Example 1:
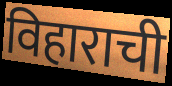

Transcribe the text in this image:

विहाराची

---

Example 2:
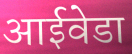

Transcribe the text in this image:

आईवेडा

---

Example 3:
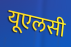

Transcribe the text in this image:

यूएलसी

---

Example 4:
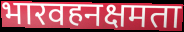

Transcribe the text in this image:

भारवहनक्षमता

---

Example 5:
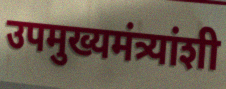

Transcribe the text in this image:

उपमुख्यमंत्र्यांशी